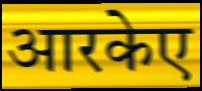
आरकेए